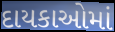
દાયકાઓમાં